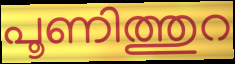
പൂണിത്തുറ